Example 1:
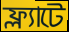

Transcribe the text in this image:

ফ্ল্যাটে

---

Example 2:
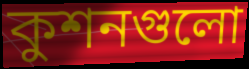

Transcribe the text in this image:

কুশনগুলো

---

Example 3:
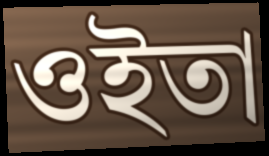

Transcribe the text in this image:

ওইতা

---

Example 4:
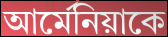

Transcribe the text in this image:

আর্মেনিয়াকে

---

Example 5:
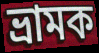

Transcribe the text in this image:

ভ্রামক